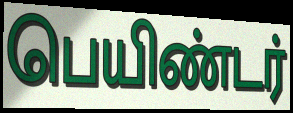
பெயிண்டர்